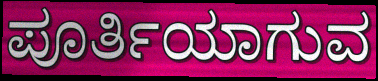
ಪೂರ್ತಿಯಾಗುವ